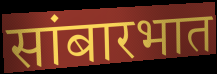
सांबारभात